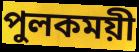
পুলকময়ী